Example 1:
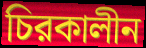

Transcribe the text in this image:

চিরকালীন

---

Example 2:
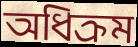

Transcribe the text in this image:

অধিক্রম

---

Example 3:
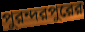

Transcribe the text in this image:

পুরন্দরপুরের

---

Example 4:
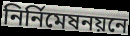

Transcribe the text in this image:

নির্নিমেষনয়নে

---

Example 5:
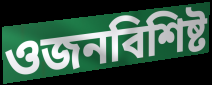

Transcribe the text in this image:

ওজনবিশিষ্ট